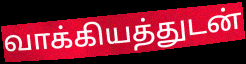
வாக்கியத்துடன்